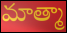
మాత్మా